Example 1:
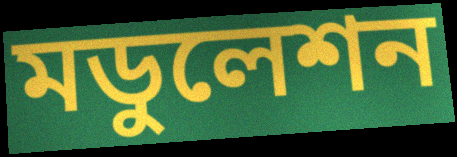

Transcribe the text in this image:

মডুলেশন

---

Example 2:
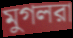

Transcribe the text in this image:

মুগলরা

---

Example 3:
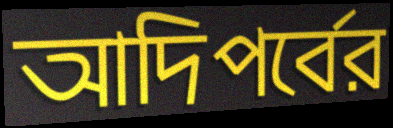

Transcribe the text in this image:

আদিপর্বের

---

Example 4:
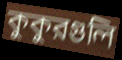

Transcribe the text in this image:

কুকুরগুলি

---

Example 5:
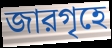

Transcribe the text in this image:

জারগৃহে